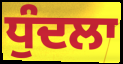
ਧੁੰਦਲਾ